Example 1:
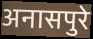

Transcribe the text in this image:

अनासपुरे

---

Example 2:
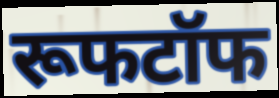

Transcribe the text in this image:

रूफटॉफ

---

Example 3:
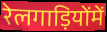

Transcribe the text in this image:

रेलगाड़ियोंमें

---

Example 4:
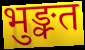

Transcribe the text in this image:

भुङ्क्त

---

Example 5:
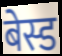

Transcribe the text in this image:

बेस्ड